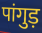
पांगुड़